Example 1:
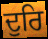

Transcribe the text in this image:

ਦੁਰਿ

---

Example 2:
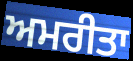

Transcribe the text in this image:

ਅਮਰੀਤਾ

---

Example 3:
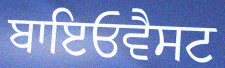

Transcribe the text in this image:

ਬਾਇਓਵੈਸਟ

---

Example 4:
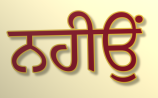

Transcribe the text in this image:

ਨਹੀਉਂ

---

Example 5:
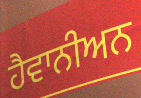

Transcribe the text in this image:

ਹੈਵਾਨੀਅਨ